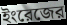
ইংরেজের